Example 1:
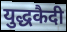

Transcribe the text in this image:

युद्धकैदी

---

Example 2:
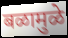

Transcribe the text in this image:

बळामुळे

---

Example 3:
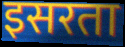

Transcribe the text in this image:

इसरता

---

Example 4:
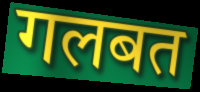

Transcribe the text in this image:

गलबत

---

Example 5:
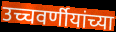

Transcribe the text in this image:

उच्चवर्णीयांच्या